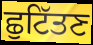
ਛੁਟਿੱਤਣ